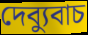
দেব্যুবাচ